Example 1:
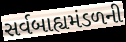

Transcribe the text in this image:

સર્વબાહ્યમંડળની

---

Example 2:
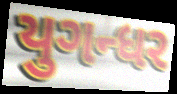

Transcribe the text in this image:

યુગન્ધર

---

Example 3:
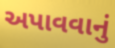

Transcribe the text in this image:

અપાવવાનું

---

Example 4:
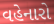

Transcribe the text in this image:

વહેનારો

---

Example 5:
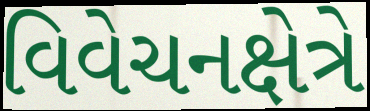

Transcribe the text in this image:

વિવેચનક્ષેત્રે